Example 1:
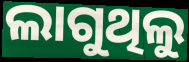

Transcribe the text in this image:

ଲାଗୁଥିଲୁ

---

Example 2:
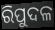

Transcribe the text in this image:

ରିପୁଦଳ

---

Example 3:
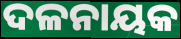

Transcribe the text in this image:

ଦଳନାୟକ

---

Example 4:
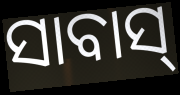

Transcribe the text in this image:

ସାବାସ୍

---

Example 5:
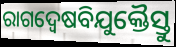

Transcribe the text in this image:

ରାଗଦ୍ୱେଷବିଯୁକ୍ତୈସ୍ତୁ